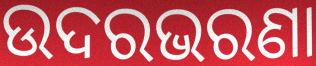
ଉଦରଭରଣା